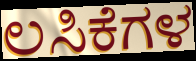
ಲಸಿಕೆಗಳ